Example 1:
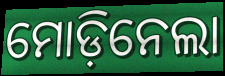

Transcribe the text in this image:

ମୋଡ଼ିନେଲା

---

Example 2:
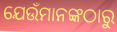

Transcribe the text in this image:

ଯେଉଁମାନଙ୍କଠାରୁ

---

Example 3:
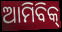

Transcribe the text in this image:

ଆମିବିକ୍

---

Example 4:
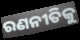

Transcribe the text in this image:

ରଣନୀତିକୁ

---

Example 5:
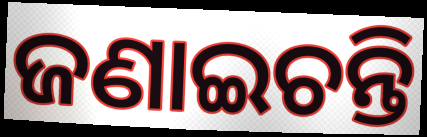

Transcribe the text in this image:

ଜଣାଇଚନ୍ତି